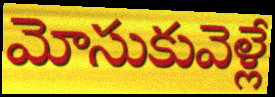
మోసుకువెళ్లే